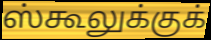
ஸ்கூலுக்குக்